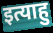
इत्याहु